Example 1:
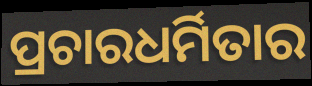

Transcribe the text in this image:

ପ୍ରଚାରଧର୍ମିତାର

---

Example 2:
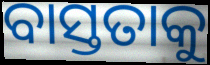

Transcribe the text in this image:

ବାସ୍ତତାକୁ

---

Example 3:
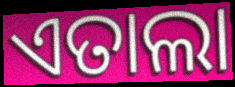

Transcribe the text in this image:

ଏତାଲା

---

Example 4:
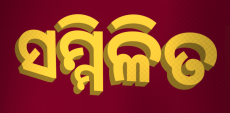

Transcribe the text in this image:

ସମ୍ମିଳିତ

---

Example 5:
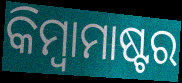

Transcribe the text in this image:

କିମ୍ୱାମାଷ୍ଟର